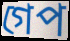
গেপ